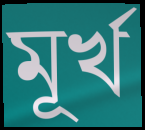
মূৰ্খ